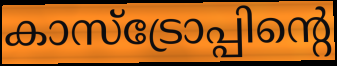
കാസ്ട്രോപ്പിന്റെ